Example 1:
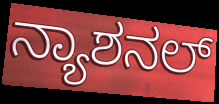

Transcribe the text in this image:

ನ್ಯಾಶನಲ್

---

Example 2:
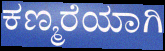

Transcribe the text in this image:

ಕಣ್ಮರೆಯಾಗಿ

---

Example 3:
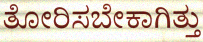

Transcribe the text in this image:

ತೋರಿಸಬೇಕಾಗಿತ್ತು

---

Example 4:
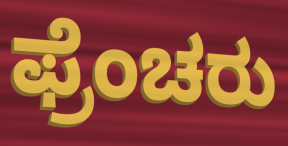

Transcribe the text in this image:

ಫ್ರೆಂಚರು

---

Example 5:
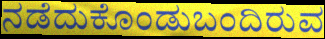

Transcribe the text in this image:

ನಡೆದುಕೊಂಡುಬಂದಿರುವ